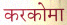
करकोमा